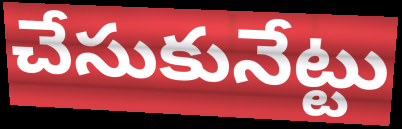
చేసుకునేట్టు